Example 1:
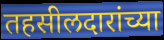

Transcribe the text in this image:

तहसीलदारांच्या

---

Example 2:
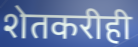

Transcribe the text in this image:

शेतकरीही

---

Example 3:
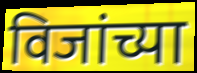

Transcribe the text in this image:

विजांच्या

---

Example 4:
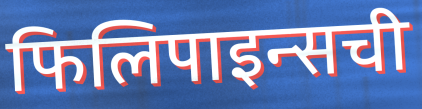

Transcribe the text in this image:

फिलिपाइन्सची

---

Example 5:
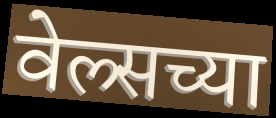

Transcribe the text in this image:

वेल्सच्या